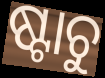
ଷ୍ଟାଚୁ